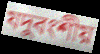
যদুবংশীয়